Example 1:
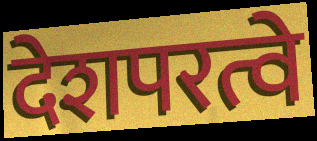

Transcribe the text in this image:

देशपरत्वे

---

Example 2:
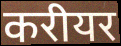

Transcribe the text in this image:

करीयर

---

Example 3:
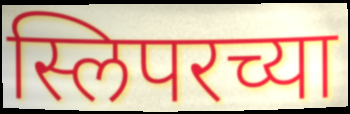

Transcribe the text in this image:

स्लिपरच्या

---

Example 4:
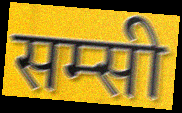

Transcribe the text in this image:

सम्सी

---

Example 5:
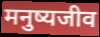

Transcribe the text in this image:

मनुष्यजीव